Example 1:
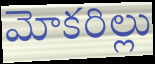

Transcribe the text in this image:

మోకరిల్లు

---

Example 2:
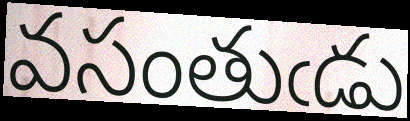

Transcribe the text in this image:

వసంతుఁడు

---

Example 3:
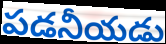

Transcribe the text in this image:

పడనీయడు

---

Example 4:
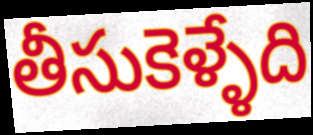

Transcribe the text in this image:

తీసుకెళ్ళేది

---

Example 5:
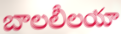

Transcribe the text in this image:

బాలలీలయా